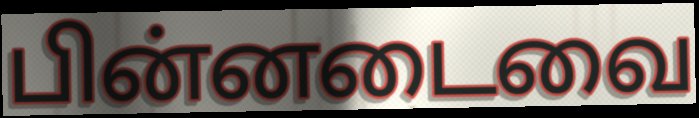
பின்னடைவை